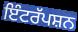
ਇੰਟਰੱਪਸ਼ਨ